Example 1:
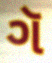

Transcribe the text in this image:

ગૅ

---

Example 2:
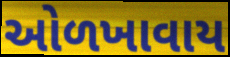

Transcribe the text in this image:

ઓળખાવાય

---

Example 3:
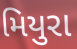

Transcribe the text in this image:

મિયુરા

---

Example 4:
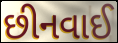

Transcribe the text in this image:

છીનવાઈ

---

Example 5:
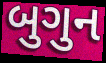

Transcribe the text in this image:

બુગુન